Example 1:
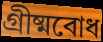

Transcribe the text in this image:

গ্রীষ্মবোধ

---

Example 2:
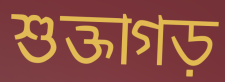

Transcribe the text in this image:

শুক্তাগড়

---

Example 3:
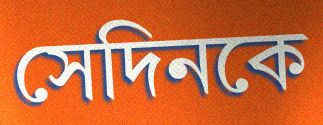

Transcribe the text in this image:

সেদিনকে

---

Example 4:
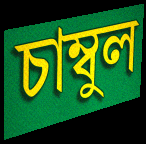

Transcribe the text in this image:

চাম্বুল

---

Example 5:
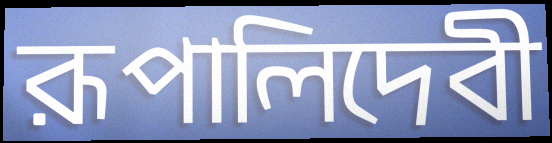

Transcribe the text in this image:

রূপালিদেবী